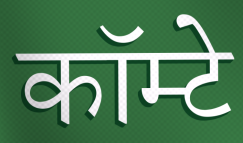
कॉम्टे